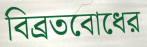
বিব্রতবোধের